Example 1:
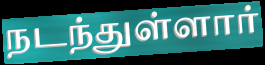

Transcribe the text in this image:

நடந்துள்ளார்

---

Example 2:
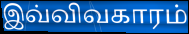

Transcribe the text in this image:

இவ்விவகாரம்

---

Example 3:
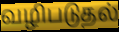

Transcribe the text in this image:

வழிபடுதல்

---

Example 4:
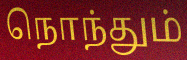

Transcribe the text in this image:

நொந்தும்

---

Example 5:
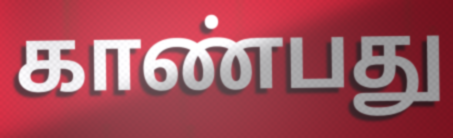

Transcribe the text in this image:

காண்பது